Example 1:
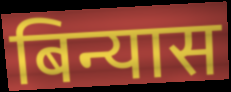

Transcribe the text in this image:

बिन्यास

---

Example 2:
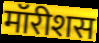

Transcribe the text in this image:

मॉरीशस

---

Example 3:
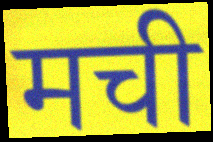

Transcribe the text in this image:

मची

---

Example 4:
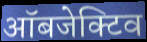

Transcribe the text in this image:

ऑबजेक्टिव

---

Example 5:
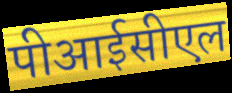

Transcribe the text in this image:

पीआईसीएल